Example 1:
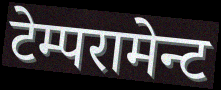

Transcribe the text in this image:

टेम्परामेन्ट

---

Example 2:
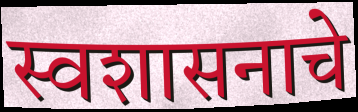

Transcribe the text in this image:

स्वशासनाचे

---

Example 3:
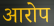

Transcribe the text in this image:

आरोप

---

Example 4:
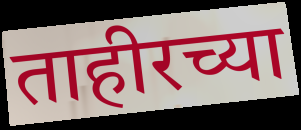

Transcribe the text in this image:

ताहीरच्या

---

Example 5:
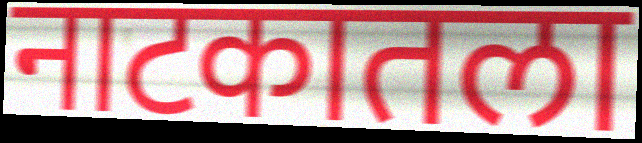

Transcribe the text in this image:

नाटकातला